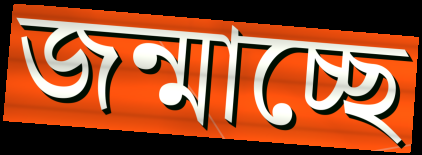
জন্মাচ্ছে